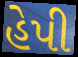
હેપી